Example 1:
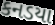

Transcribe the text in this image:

કનડયા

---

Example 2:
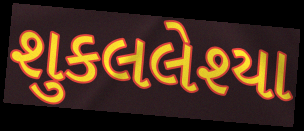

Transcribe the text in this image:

શુકલલેશ્યા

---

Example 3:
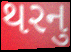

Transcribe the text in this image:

થરનુ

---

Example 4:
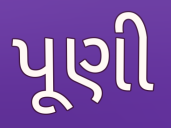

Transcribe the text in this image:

પૂણી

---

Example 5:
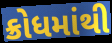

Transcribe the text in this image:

ક્રોધમાંથી